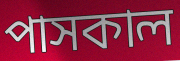
পাসকাল